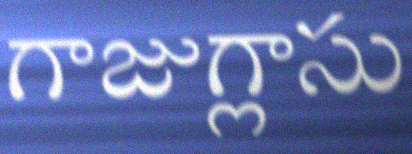
గాజుగ్లాసు